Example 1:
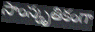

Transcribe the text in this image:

సాంస్కృతికంగా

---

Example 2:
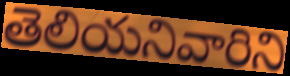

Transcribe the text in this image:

తెలియనివారిని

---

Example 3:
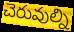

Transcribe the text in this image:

చెరువుల్ని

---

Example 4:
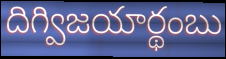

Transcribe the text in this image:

దిగ్విజయార్థంబు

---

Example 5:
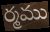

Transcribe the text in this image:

ర్మము